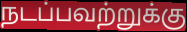
நடப்பவற்றுக்கு